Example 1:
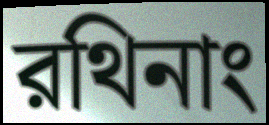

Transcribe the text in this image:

রথিনাং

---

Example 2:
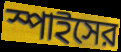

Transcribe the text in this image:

স্পাইসের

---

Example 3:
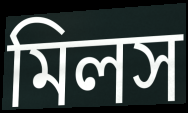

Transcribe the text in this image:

মিলস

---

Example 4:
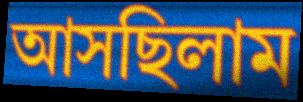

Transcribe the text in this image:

আসছিলাম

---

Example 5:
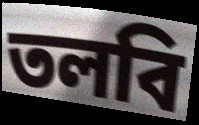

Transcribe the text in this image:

তলবি